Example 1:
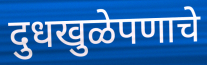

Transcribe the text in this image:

दुधखुळेपणाचे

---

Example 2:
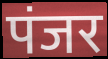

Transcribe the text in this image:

पंजर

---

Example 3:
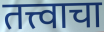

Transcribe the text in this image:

तत्त्वाचा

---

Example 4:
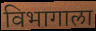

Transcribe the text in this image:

विभागाला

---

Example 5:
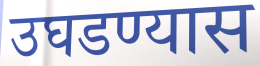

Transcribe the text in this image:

उघडण्यास